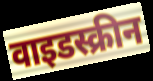
वाइडस्क्रीन